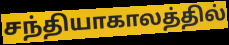
சந்தியாகாலத்தில்